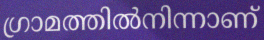
ഗ്രാമത്തിൽനിന്നാണ്